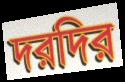
দরদির